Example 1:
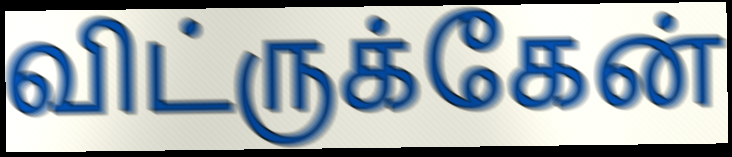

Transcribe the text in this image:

விட்ருக்கேன்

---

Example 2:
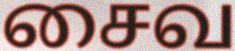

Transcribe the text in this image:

சைவ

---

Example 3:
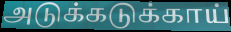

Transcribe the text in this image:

அடுக்கடுக்காய்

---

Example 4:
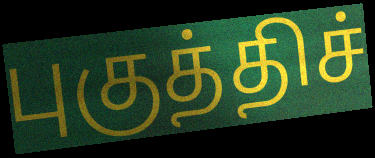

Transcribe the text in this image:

புகுத்திச்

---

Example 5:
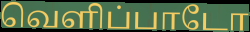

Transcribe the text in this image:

வெளிப்பாடோ